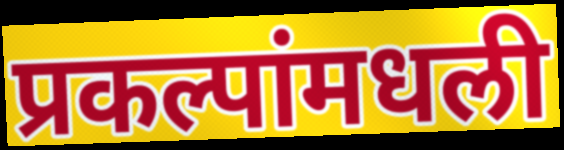
प्रकल्पांमधली